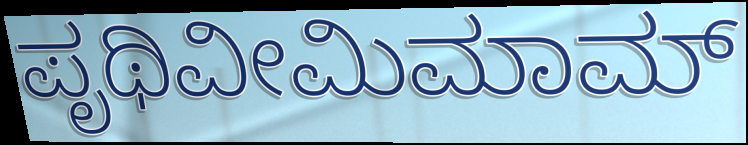
ಪೃಥಿವೀಮಿಮಾಮ್